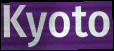
Kyoto